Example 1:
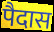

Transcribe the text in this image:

पैदास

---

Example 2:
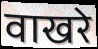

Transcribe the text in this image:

वाखरे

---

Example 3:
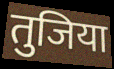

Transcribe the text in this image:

तुजिया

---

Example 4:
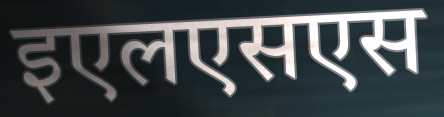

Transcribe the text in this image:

इएलएसएस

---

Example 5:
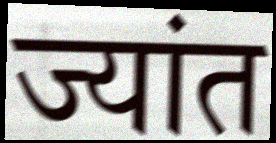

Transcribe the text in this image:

ज्यांत